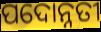
ପଦୋନ୍ନତୀ